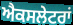
ਐਕਸਲੇਟਰਾਂ